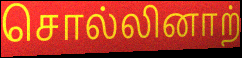
சொல்லினாற்